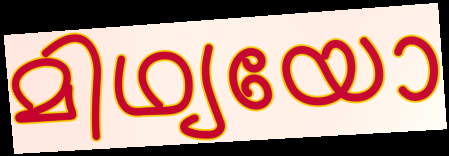
മിഥ്യയോ